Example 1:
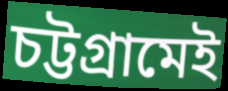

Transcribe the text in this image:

চট্টগ্রামেই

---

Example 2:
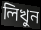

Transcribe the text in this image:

লিখুন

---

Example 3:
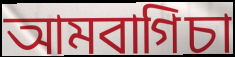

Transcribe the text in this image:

আমবাগিচা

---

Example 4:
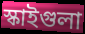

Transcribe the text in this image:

স্কাইগুলা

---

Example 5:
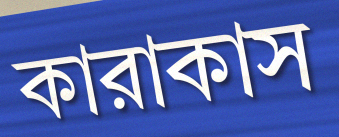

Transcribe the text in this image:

কারাকাস